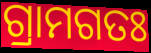
ଗ୍ରାମଗତଃ